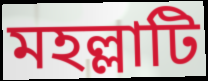
মহল্লাটি